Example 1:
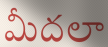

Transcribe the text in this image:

మీదలా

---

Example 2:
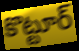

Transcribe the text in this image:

కొట్టూర్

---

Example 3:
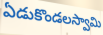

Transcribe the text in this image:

ఏడుకొండలస్వామి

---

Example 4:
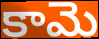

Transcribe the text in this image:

కామె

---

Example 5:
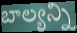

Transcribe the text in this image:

బాల్యన్ని